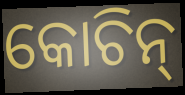
କୋଚିନ୍